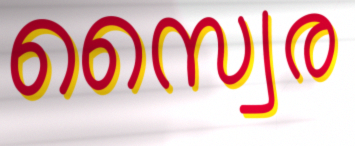
സ്വൈര